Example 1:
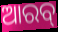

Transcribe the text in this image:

ଆରବ୍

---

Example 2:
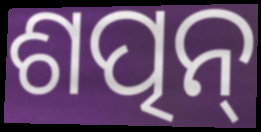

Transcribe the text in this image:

ଶତ୍ପନ୍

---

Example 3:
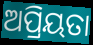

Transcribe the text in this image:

ଅପ୍ରିୟତା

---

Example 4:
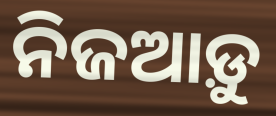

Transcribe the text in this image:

ନିଜଆଡ଼ୁ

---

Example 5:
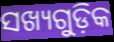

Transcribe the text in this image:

ସଖ୍ୟଗୁଡ଼ିକ